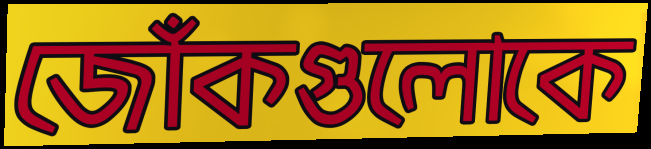
জোঁকগুলোকে